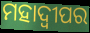
ମହାଦ୍ୱୀପର